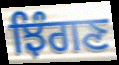
ਝਿੰਗਣ